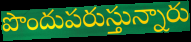
పొందుపరుస్తున్నారు